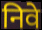
निवे